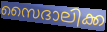
സൈദാലിക്ക